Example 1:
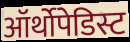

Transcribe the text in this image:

ऑर्थोपेडिस्ट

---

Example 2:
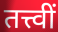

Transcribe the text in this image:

तत्त्वीं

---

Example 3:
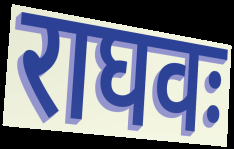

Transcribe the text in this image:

राघवः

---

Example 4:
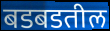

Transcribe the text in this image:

बडबडतील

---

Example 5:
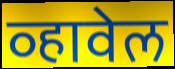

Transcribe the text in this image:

व्हावेल